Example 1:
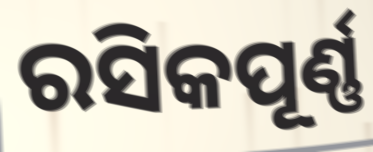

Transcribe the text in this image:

ରସିକପୂର୍ଣ୍ଣ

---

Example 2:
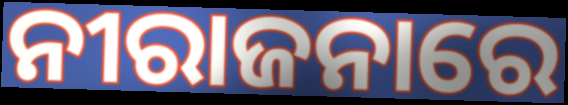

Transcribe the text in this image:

ନୀରାଜନାରେ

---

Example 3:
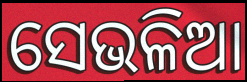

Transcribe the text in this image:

ସେଭଳିଆ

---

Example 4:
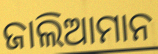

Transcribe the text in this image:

ଜାଲିଆମାନ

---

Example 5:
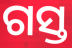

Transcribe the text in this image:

ଗସ୍ତ